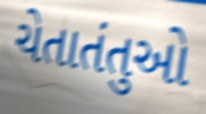
ચેતાતંતુઓ